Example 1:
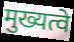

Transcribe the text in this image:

मुख्यत्वे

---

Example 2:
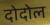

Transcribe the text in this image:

दोदोल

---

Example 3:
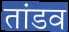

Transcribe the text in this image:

तांडव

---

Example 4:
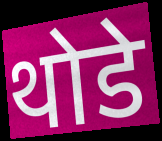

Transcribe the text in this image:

थोडे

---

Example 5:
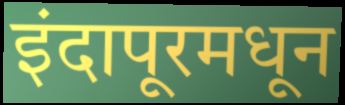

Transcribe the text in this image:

इंदापूरमधून